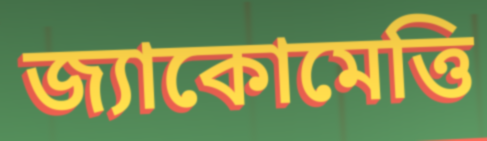
জ্যাকোমেত্তি